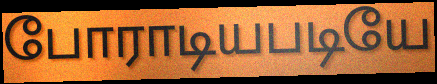
போராடியபடியே